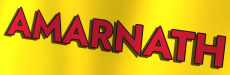
AMARNATH